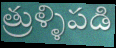
త్రుళ్ళిపడి